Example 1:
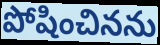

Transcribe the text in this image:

పోషించినను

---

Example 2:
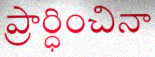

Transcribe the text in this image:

ప్రార్ధించినా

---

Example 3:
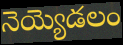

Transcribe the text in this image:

నెయ్యెడలం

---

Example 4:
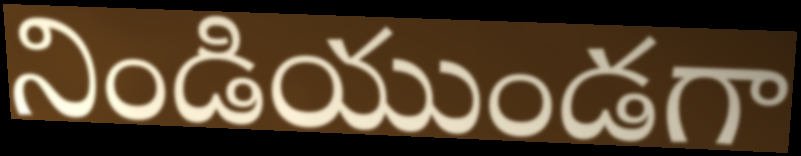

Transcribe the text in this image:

నిండియుండగా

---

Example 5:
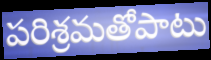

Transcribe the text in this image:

పరిశ్రమతోపాటు